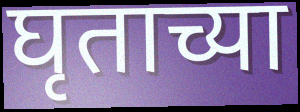
घृताच्या